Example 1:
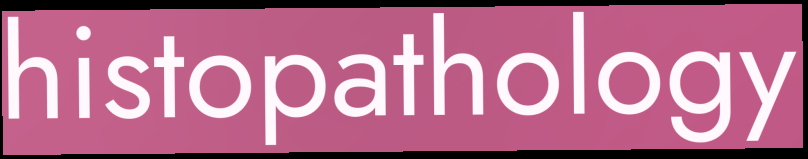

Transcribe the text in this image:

histopathology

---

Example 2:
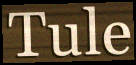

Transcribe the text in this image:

Tule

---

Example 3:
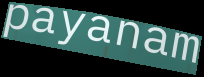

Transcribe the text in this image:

payanam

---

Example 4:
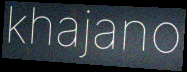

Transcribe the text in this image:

khajano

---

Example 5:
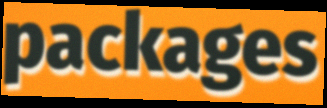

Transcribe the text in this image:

packages